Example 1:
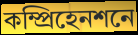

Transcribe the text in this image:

কম্প্রিহেনশনে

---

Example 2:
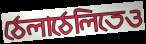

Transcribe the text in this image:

ঠেলাঠেলিতেও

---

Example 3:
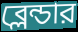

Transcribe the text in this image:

ব্লেন্ডার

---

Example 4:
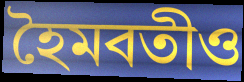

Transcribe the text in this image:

হৈমবতীও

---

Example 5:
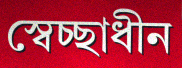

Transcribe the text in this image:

স্বেচ্ছাধীন